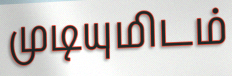
முடியுமிடம்